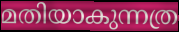
മതിയാകുന്നത്ര